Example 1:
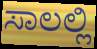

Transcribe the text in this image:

ಸಾಲಲ್ಲಿ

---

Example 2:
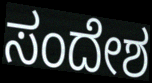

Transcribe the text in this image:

ಸಂದೇಶ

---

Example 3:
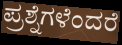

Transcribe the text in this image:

ಪ್ರಶ್ನೆಗಳೆಂದರೆ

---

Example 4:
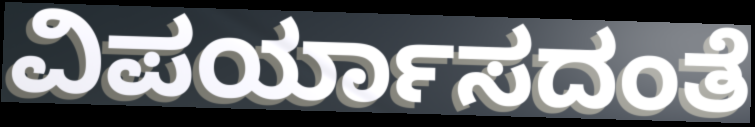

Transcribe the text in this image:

ವಿಪರ್ಯಾಸದಂತೆ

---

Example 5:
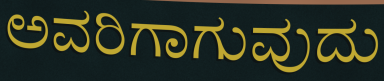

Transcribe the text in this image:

ಅವರಿಗಾಗುವುದು